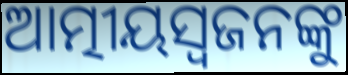
ଆତ୍ମୀୟସ୍ୱଜନଙ୍କୁ